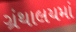
ગ્રંથાલયમાં